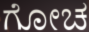
ಗೋಚ